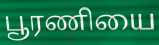
பூரணியை